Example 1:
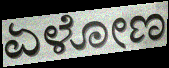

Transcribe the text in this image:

ಏಳೋಣ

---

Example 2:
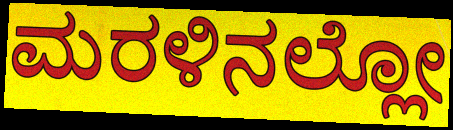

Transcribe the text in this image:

ಮರಳಿನಲ್ಲೋ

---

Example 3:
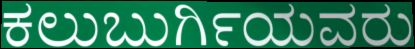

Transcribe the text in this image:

ಕಲುಬುರ್ಗಿಯವರು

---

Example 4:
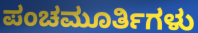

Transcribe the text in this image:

ಪಂಚಮೂರ್ತಿಗಳು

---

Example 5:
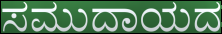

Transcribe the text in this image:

ಸಮುದಾಯದ